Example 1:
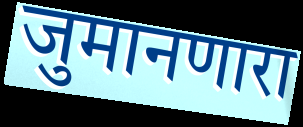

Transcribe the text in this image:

जुमानणारा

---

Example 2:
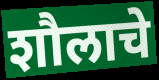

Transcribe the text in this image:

शौलाचे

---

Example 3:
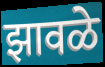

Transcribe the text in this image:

झावळे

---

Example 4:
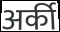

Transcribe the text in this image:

अर्की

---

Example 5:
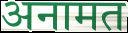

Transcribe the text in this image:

अनामत